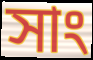
সাং